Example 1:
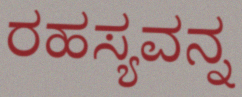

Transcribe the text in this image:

ರಹಸ್ಯವನ್ನ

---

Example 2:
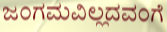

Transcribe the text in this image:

ಜಂಗಮವಿಲ್ಲದವಂಗೆ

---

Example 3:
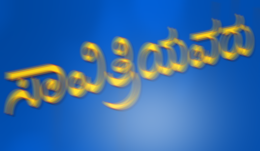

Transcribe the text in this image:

ಸಾವಿತ್ರಿಯವರು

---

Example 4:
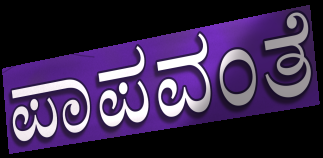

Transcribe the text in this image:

ಪಾಪವಂತೆ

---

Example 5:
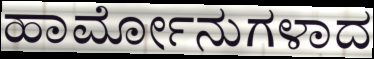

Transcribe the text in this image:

ಹಾರ್ಮೋನುಗಳಾದ